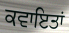
ਕਵਾਇਤਾਂ